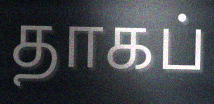
தாகப்